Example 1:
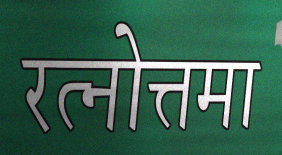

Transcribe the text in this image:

रत्नोत्तमा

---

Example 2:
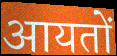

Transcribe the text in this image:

आयतों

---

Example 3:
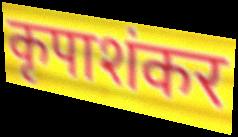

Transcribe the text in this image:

कृपाशंकर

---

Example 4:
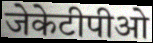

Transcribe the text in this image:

जेकेटीपीओ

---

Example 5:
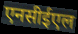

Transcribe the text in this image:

एनसीईएल